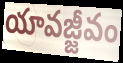
యావజ్జీవం